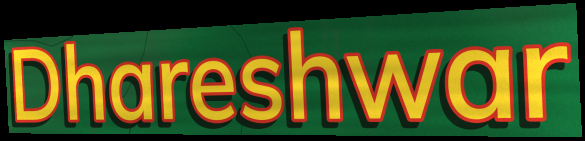
Dhareshwar